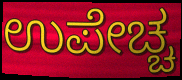
ಉಪೇಚ್ಚ